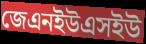
জেএনইউএসইউ